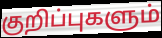
குறிப்புகளும்